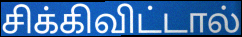
சிக்கிவிட்டால்